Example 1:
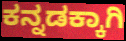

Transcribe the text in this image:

ಕನ್ನಡಕ್ಕಾಗಿ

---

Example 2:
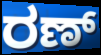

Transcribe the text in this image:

ರಣ್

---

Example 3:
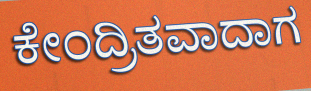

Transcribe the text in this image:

ಕೇಂದ್ರಿತವಾದಾಗ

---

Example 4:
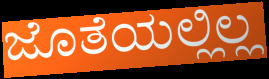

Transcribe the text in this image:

ಜೊತೆಯಲ್ಲಿಲ್ಲ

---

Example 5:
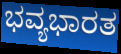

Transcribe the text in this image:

ಭವ್ಯಭಾರತ